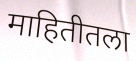
माहितीतला